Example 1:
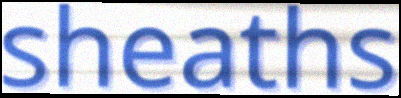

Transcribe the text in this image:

sheaths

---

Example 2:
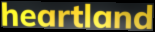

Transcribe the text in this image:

heartland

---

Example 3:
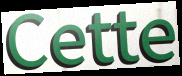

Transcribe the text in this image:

Cette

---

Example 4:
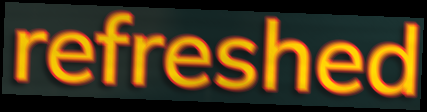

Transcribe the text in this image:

refreshed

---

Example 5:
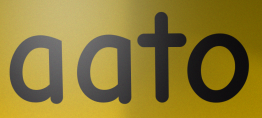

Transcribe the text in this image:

aato